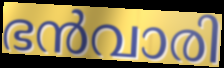
ഭൻവാരി